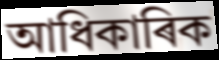
আধিকাৰিক